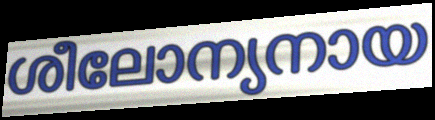
ശീലോന്യനായ